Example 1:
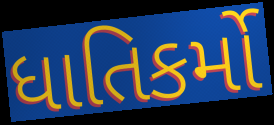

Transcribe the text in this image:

ધાતિકર્મો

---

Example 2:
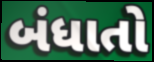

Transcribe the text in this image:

બંધાતો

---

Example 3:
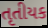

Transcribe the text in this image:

તૃતીયક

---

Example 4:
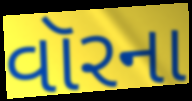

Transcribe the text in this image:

વૉરના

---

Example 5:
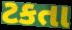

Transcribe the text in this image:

ટકતા